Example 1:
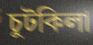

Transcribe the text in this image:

চুটকিলা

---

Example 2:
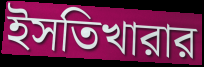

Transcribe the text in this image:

ইসতিখারার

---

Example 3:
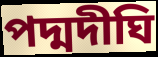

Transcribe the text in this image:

পদ্মদীঘি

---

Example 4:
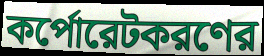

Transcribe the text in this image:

কর্পোরেটকরণের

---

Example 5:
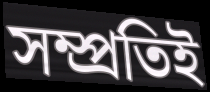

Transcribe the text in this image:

সম্প্রতিই